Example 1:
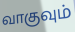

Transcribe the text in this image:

வாகுவும்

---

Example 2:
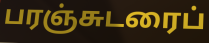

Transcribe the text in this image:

பரஞ்சுடரைப்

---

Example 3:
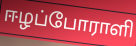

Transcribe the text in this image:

ஈழப்போராளி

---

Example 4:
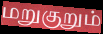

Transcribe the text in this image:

மறுகுறும்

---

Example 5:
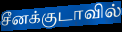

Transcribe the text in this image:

சீனக்குடாவில்